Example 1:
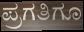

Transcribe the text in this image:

ಪ್ರಗತಿಗೂ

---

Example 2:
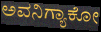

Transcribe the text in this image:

ಅವನಿಗ್ಯಾಕೋ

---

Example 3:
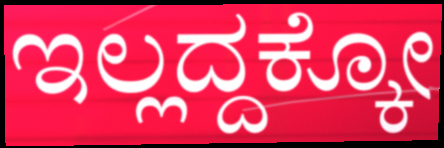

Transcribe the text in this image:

ಇಲ್ಲದ್ದಕ್ಕೋ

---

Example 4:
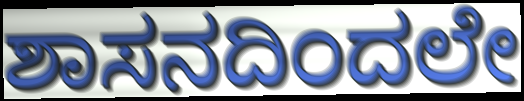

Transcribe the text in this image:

ಶಾಸನದಿಂದಲೇ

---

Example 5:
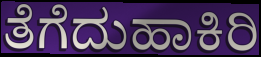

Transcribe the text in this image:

ತೆಗೆದುಹಾಕಿರಿ